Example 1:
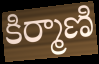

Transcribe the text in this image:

కిర్మాణి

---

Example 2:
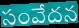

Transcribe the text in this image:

సంవేదన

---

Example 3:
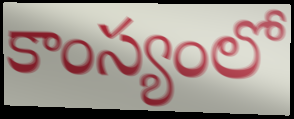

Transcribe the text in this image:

కాంస్యంలో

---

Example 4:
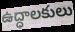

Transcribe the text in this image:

ఉద్ధాలకులు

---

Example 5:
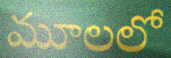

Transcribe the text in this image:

మూలలో